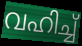
വഹിച്ച്